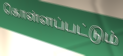
கொள்ளப்பட்டும்